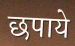
छपाये